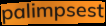
palimpsest